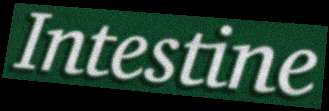
Intestine